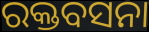
ରକ୍ତବସନା